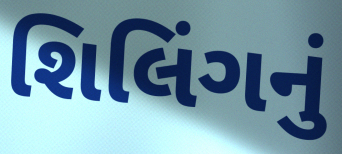
શિલિંગનું